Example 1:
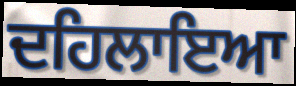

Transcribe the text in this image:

ਦਹਿਲਾਇਆ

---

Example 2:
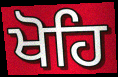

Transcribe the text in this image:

ਖੋਹਿ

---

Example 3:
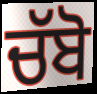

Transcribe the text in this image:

ਚੱਬੋ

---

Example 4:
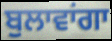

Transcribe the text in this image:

ਬੁਲਾਵਾਂਗਾ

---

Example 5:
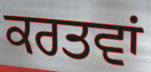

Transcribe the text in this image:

ਕਰਤਵਾਂ